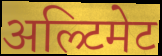
अल्टिमेट